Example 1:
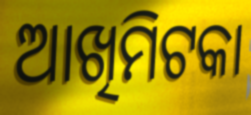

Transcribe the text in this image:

ଆଖିମିଟକା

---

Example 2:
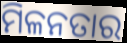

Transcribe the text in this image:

ମିଳନତାର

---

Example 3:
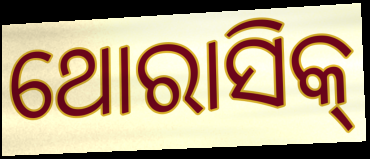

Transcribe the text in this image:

ଥୋରାସିକ୍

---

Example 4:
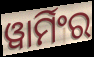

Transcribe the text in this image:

ୱାର୍ମିଂର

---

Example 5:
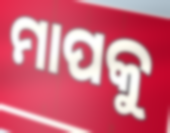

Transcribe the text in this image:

ମାପକୁ